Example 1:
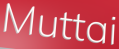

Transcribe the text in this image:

Muttai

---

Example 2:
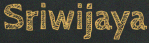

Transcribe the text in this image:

Sriwijaya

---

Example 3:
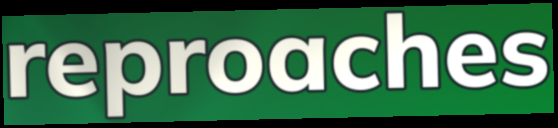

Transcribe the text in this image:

reproaches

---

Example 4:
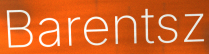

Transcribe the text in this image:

Barentsz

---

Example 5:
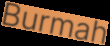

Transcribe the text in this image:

Burmah